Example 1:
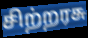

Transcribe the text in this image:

சிற்றரசு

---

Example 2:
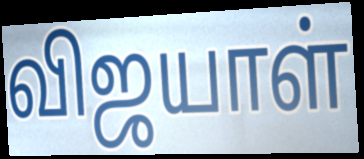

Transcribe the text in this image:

விஜயாள்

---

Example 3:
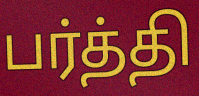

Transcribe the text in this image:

பர்த்தி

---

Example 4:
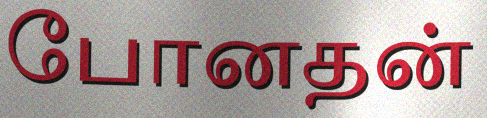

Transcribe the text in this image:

போனதன்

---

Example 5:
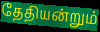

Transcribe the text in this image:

தேதியன்றும்